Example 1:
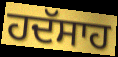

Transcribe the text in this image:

ਹਦੱਸਾਹ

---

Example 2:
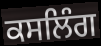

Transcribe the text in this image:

ਕਸਲਿੰਗ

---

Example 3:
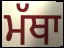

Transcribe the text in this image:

ਮੱਥਾ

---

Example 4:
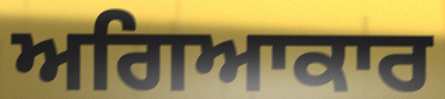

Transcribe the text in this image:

ਅਗਿਆਕਾਰ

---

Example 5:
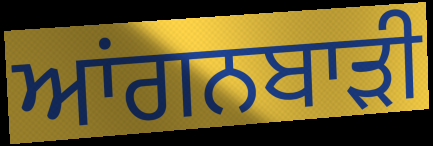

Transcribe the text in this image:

ਆਂਗਨਬਾੜੀ